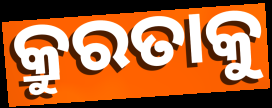
କ୍ରୁରତାକୁ